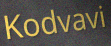
Kodvavi